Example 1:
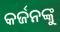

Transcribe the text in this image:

କର୍ଜନଙ୍କୁ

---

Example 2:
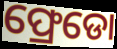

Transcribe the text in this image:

ଫ୍ରେଡୋ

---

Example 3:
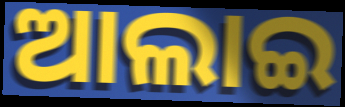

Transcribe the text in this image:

ଆଲାଇ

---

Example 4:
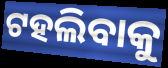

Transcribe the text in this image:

ଟହଲିବାକୁ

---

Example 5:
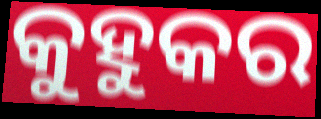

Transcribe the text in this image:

କୁହୁକର